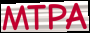
MTPA